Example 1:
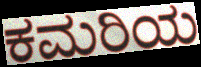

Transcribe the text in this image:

ಕಮರಿಯ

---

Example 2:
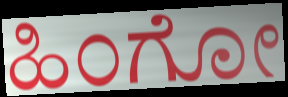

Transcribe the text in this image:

ಹಿಂಗೋ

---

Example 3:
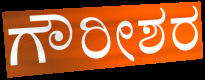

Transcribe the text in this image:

ಗೌರೀಶರ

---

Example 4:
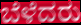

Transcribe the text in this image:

ಬೆಳೆದರು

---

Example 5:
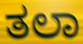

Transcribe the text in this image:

ತಲಾ